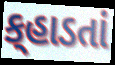
ક્‌હાડતાં